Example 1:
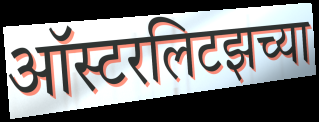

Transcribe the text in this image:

ऑस्टरलिटझच्या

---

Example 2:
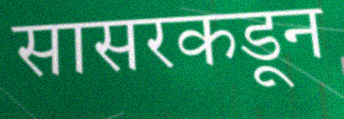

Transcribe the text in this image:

सासरकडून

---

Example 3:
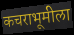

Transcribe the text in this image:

कचराभूमीला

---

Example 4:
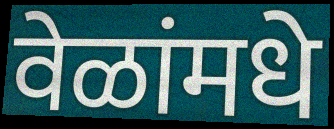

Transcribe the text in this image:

वेळांमधे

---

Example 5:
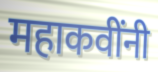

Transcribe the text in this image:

महाकवींनी